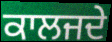
ਕਾਲਜਦੇ